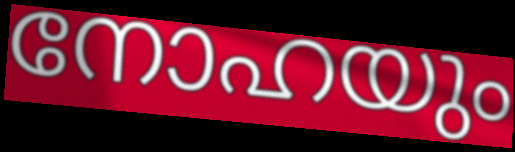
നോഹയും